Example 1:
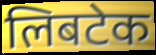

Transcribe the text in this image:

लिबटेक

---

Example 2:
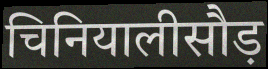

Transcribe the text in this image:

चिनियालीसौड़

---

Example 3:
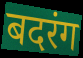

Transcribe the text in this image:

बदरंग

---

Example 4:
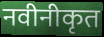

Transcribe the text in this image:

नवीनीकृत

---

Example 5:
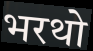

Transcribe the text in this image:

भरथो